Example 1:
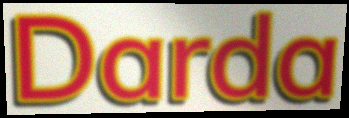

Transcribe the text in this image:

Darda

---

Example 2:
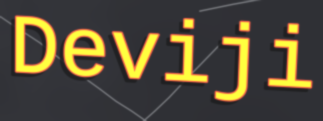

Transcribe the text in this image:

Deviji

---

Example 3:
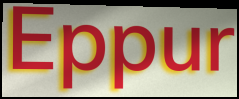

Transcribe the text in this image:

Eppur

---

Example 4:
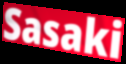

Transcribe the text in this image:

Sasaki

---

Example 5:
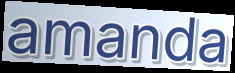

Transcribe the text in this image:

amanda